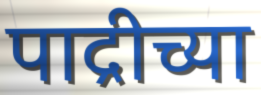
पाद्रीच्या